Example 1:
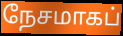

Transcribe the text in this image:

நேசமாகப்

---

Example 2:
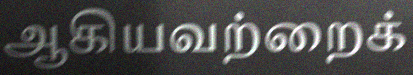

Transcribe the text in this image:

ஆகியவற்றைக்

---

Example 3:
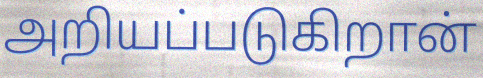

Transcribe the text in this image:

அறியப்படுகிறான்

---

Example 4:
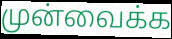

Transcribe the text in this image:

முன்வைக்க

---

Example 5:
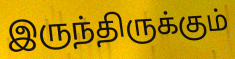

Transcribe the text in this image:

இருந்திருக்கும்